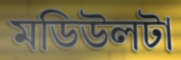
মডিউলটা